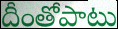
దీంతోపాటు